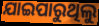
ଯାଇପାରୁଥିଲୁ